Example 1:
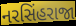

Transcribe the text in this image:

નરસિંહરાજા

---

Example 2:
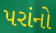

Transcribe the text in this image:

પરાંનો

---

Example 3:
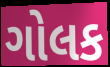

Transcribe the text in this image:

ગોલક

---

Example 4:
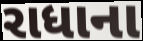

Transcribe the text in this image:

રાધાના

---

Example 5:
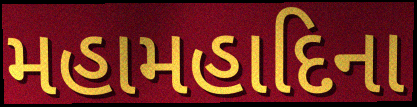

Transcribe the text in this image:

મહામહાદિના